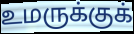
உமருக்குக்